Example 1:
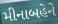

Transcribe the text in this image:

મીનાબહેને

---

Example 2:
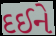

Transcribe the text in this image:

દઈને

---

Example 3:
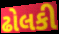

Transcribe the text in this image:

ઢોલકી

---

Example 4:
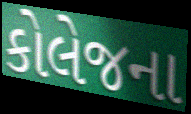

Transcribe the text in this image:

કોલેજના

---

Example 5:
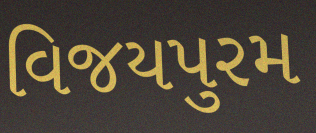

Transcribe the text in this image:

વિજયપુરમ